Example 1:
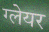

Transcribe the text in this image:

ग्लेयर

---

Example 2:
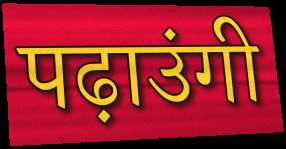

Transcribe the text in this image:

पढ़ाउंगी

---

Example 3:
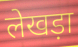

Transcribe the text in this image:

लेखड़ा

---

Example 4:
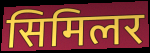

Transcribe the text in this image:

सिमिलर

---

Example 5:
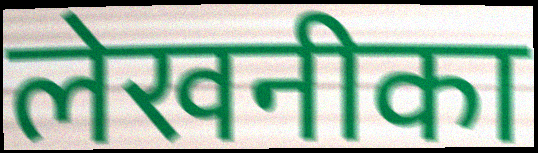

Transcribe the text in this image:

लेखनीका